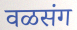
वळसंग